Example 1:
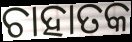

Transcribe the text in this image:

ଚାହାତକ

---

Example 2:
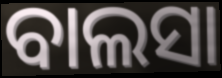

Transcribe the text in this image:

ବାଲସା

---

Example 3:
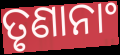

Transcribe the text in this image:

ତୃଣାନାଂ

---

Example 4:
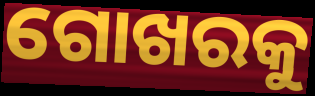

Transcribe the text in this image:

ଗୋଖରକୁ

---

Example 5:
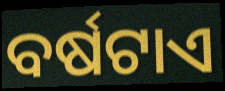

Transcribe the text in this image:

ବର୍ଷଟାଏ